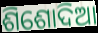
ଶିଶୋଦିଆ